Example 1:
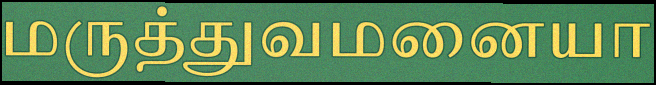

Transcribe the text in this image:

மருத்துவமனையா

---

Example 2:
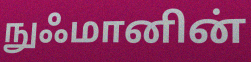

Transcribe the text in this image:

நுஃமானின்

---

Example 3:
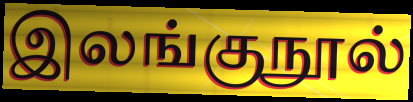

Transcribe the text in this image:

இலங்குநூல்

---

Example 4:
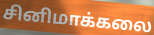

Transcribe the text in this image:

சினிமாக்கலை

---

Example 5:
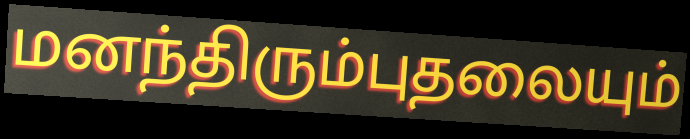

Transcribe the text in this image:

மனந்திரும்புதலையும்